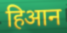
हिआन